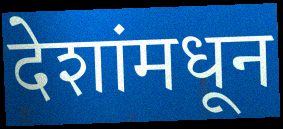
देशांमधून